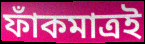
ফাঁকমাত্রই